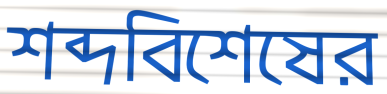
শব্দবিশেষের